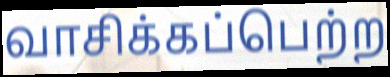
வாசிக்கப்பெற்ற